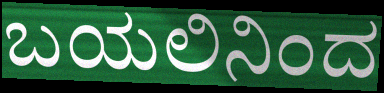
ಬಯಲಿನಿಂದ